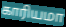
காரியமா